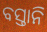
ବସ୍ତାନି